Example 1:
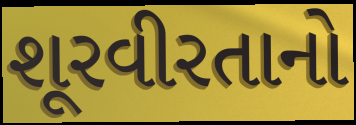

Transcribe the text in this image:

શૂરવીરતાનો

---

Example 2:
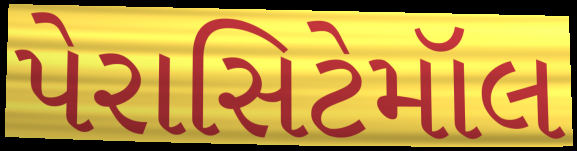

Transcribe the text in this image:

પેરાસિટેમૉલ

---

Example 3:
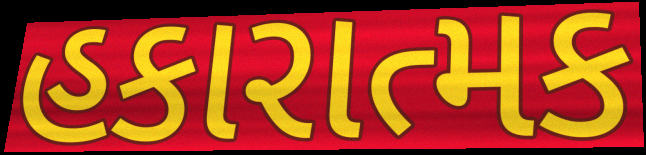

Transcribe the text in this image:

હકારાત્મક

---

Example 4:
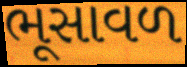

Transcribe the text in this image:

ભૂસાવળ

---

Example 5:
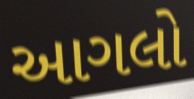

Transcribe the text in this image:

આગલો